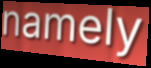
namely